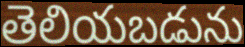
తెలియబడును